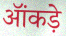
ऑंकड़े